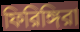
ফিরিঙ্গিরা